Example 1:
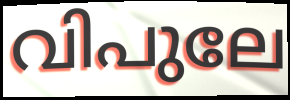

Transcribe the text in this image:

വിപുലേ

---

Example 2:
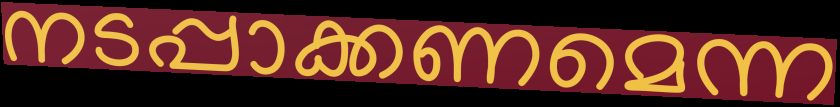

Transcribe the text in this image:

നടപ്പാക്കണമെന്ന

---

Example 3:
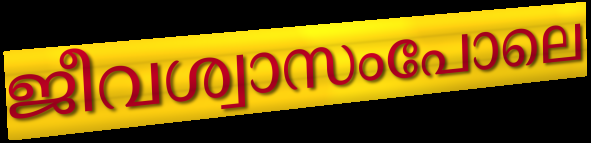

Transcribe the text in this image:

ജീവശ്വാസംപോലെ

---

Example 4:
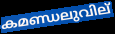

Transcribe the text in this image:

കമണ്ഡലുവില്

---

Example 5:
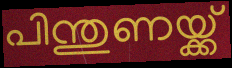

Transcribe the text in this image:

പിന്തുണയ്ക്ക്